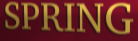
SPRING